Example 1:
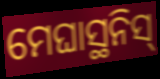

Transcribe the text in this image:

ମେଘାସ୍ଥନିସ୍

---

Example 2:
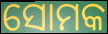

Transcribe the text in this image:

ସୋମକ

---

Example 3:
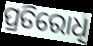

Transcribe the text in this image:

ପ୍ରତିରୋଧି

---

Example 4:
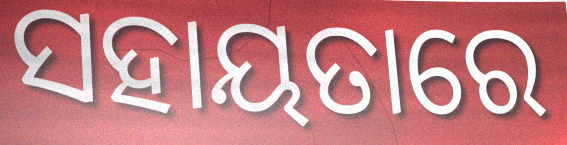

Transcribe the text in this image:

ସହାୟତାରେ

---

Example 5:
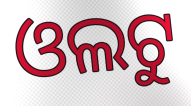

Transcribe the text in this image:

ଓଲଟୁ